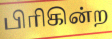
பிரிகின்ற